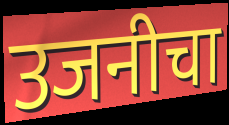
उजनीचा